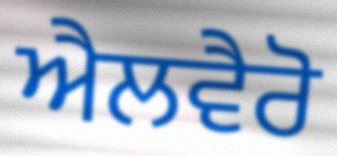
ਐਲਵੈਰੋ